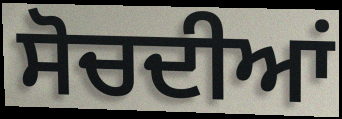
ਸੋਚਦੀਆਂ